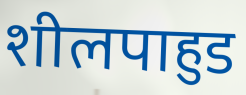
शीलपाहुड